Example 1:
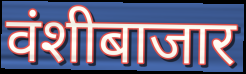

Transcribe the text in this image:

वंशीबाजार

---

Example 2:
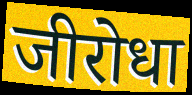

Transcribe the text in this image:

जीरोधा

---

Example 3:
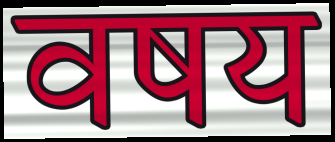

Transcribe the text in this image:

वषय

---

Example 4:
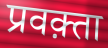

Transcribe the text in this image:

प्रवक़्ता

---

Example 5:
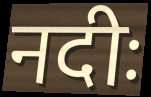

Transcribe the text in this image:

नदीः